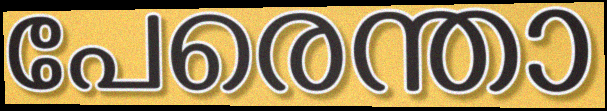
പേരെന്താ